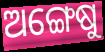
ଅଙ୍ଗେଷୁ